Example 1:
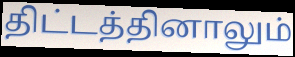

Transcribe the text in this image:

திட்டத்தினாலும்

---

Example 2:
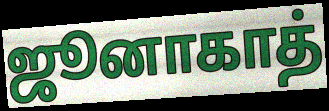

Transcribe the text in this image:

ஜூனாகாத்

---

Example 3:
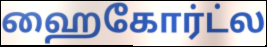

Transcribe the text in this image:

ஹைகோர்ட்ல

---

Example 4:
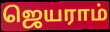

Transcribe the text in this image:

ஜெயராம்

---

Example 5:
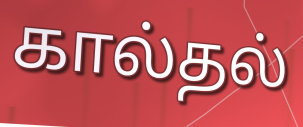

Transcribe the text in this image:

கால்தல்